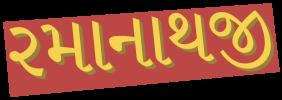
રમાનાથજી